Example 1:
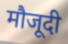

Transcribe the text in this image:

मौजूदी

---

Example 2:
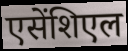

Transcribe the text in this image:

एसेंशिएल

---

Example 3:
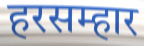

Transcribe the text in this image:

हरसम्हार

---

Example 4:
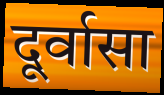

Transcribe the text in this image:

दूर्वासा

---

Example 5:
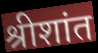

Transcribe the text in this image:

श्रीशांत